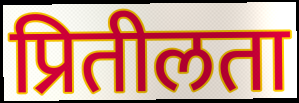
प्रितीलता